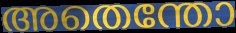
അതെന്തോ